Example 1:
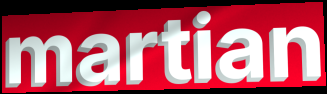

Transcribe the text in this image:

martian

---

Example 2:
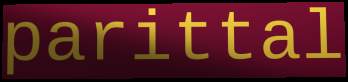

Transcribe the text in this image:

parittal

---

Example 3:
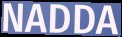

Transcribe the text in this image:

NADDA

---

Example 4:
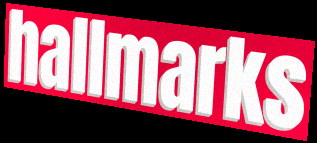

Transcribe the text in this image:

hallmarks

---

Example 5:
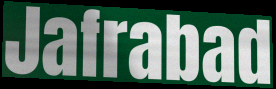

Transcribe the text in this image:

Jafrabad